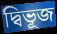
দ্বিভূজ